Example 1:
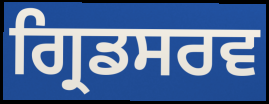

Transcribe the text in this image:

ਗ੍ਰਿਡਸਰਵ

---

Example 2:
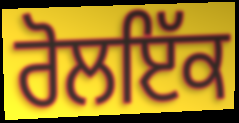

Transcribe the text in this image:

ਰੋਲਇੱਕ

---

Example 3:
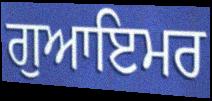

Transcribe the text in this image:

ਗੁਆਇਮਰ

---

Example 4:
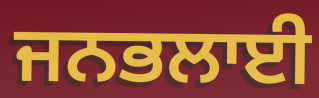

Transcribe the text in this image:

ਜਨਭਲਾਈ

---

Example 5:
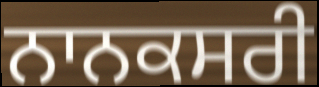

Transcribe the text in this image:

ਨਾਨਕਸਰੀ